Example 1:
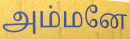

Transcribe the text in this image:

அம்மனே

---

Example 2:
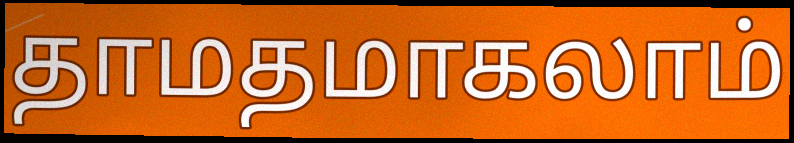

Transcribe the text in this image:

தாமதமாகலாம்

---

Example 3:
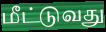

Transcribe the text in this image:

மீட்டுவது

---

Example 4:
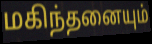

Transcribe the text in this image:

மகிந்தனையும்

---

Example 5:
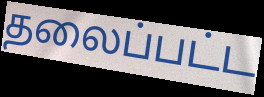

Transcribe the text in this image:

தலைப்பட்ட